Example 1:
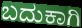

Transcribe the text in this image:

ಬದುಕಾಗಿ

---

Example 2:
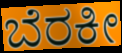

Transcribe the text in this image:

ಬೆರಕೀ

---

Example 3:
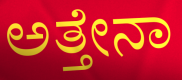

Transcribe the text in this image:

ಅತ್ತೇನಾ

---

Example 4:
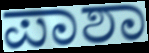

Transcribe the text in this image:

ಪಾಶಾ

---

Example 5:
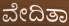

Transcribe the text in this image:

ವೇದಿತಾ